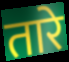
तारे